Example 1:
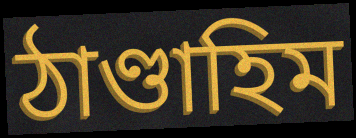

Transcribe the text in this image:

ঠাণ্ডাহিম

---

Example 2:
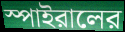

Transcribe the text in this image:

স্পাইরালের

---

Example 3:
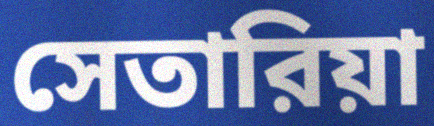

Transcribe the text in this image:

সেতারিয়া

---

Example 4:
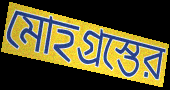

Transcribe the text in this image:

মোহগ্রস্তের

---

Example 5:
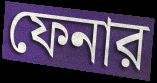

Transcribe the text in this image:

ফেনার